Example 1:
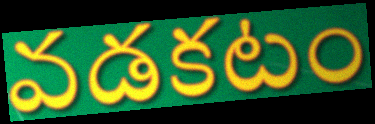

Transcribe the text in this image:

వడకటం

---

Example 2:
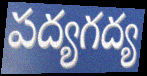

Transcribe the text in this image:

పద్యగద్య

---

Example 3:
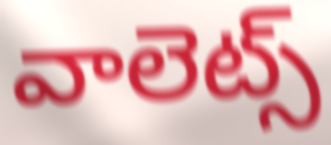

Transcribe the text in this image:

వాలెట్స్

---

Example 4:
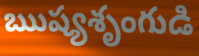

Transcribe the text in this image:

ఋష్యశృంగుడి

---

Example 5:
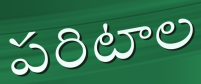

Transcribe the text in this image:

పరిటాల